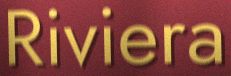
Riviera